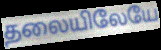
தலையிலேயே